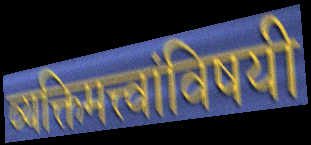
व्यक्तिमत्त्वांविषयी